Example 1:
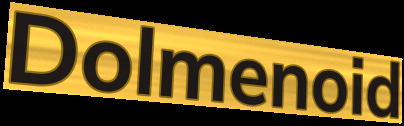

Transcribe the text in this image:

Dolmenoid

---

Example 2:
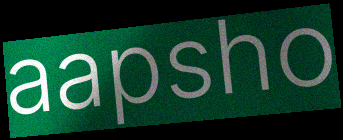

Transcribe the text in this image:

aapsho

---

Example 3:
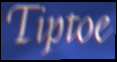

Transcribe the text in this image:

Tiptoe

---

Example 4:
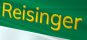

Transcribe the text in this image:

Reisinger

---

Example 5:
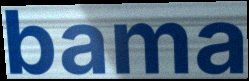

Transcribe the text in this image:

bama